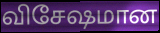
விசேஷமான